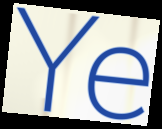
Ye